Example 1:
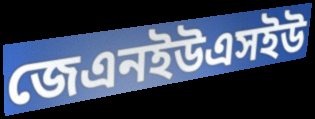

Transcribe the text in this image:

জেএনইউএসইউ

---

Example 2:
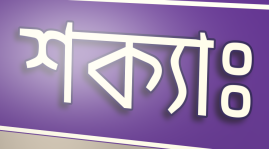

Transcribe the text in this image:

শক্যাঃ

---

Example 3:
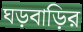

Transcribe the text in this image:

ঘড়বাড়ির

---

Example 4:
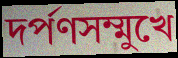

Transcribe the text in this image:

দর্পণসম্মুখে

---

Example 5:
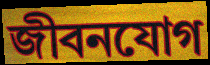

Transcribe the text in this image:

জীবনযোগ